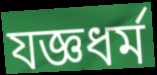
যজ্ঞধর্ম